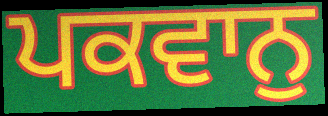
ਪਕਵਾਨੁ